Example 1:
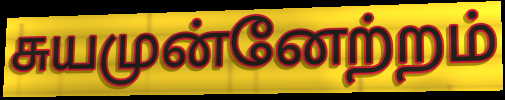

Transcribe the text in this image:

சுயமுன்னேற்றம்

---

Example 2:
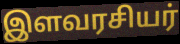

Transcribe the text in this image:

இளவரசியர்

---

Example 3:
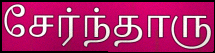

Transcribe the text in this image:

சேர்ந்தாரு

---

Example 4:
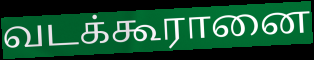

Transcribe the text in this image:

வடக்கூரானை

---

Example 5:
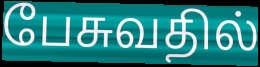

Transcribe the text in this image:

பேசுவதில்